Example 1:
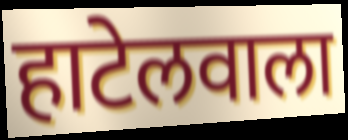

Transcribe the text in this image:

हाटेलवाला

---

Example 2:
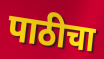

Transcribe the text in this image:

पाठीचा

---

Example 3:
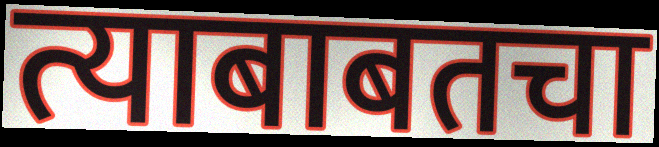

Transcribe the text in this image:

त्याबाबतचा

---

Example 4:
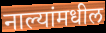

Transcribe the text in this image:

नाल्यांमधील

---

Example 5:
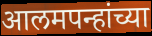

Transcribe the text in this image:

आलमपन्हांच्या